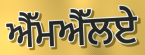
ਐੱਮਐੱਲਏ